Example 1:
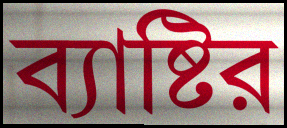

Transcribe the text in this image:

ব্যাষ্টির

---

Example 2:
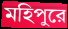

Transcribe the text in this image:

মহিপুরে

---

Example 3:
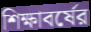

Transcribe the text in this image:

শিক্ষাবর্ষের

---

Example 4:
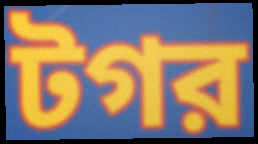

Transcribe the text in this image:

টগর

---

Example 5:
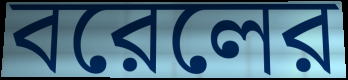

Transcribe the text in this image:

বরেলের